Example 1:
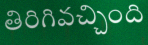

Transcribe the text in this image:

తిరిగివచ్చింది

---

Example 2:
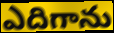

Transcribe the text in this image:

ఎదిగాను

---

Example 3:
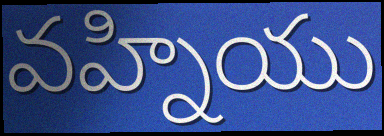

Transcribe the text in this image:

వహ్నియు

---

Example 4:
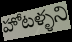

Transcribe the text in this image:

హోటళ్ళని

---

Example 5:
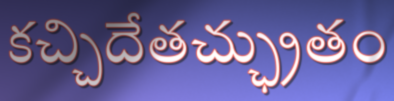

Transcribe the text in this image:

కచ్చిదేతచ్ఛ్రుతం